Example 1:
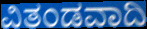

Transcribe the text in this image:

ವಿತಂಡವಾದಿ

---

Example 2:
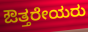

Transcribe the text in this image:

ಔತ್ತರೇಯರು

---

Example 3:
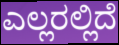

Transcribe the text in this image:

ಎಲ್ಲರಲ್ಲಿದೆ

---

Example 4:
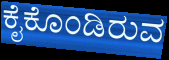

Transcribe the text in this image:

ಕೈಕೊಂಡಿರುವ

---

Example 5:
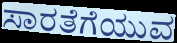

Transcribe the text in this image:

ಸಾರತೆಗೆಯುವ